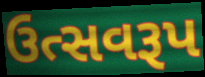
ઉત્સવરૂપ